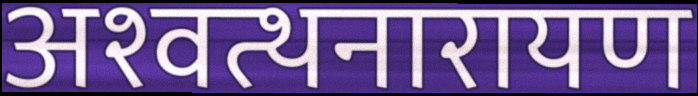
अश्वत्थनारायण